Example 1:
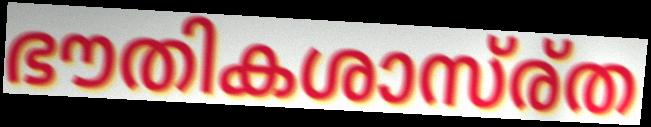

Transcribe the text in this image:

ഭൗതികശാസ്ര്ത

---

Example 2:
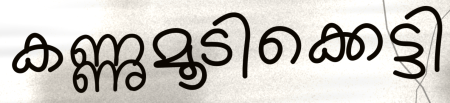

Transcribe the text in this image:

കണ്ണുമൂടിക്കെട്ടി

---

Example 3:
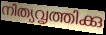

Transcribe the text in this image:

നിത്യവൃത്തിക്കു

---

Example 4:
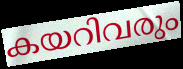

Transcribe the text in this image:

കയറിവരും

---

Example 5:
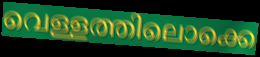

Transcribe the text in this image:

വെള്ളത്തിലൊക്കെ